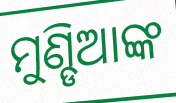
ମୁଣ୍ଡିଆଙ୍କ